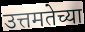
उत्तमतेच्या